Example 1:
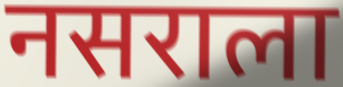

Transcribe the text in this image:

नसराला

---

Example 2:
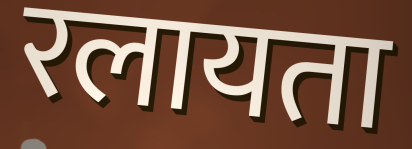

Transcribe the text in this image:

रलायता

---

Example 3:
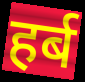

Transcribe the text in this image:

हर्ब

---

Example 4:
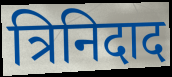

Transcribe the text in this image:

त्रिनिदाद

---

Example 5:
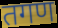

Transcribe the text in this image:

तगण